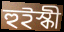
হুইস্কী